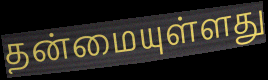
தன்மையுள்ளது